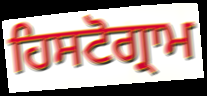
ਹਿਸਟੋਗ੍ਰਾਮ